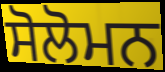
ਸੋਲੋਮਨ